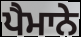
ਪੈਮਾਨੇ